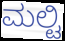
ಮಲ್ಟಿ